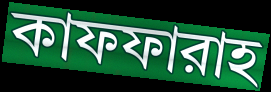
কাফফারাহ